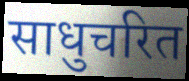
साधुचरित